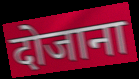
दोजाना